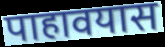
पाहावयास